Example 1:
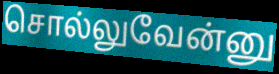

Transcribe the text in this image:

சொல்லுவேன்னு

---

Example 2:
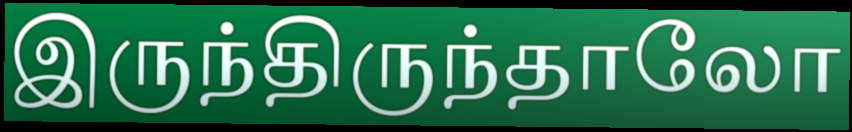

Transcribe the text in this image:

இருந்திருந்தாலோ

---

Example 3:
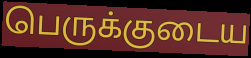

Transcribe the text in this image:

பெருக்குடைய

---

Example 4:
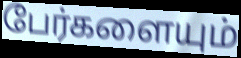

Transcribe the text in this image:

பேர்களையும்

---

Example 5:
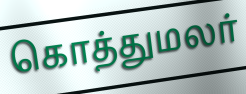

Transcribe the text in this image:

கொத்துமலர்